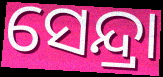
ସେନ୍ଦ୍ରା